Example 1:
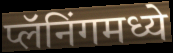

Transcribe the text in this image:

प्लॅनिंगमध्ये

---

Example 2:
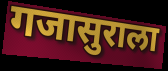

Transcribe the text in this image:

गजासुराला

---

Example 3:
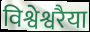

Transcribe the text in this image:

विश्वेश्वरैया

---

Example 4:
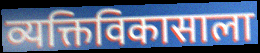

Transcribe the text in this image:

व्यक्तिविकासाला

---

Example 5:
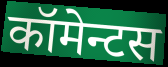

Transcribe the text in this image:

कॉमेन्टस